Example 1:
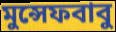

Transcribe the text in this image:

মুন্সেফবাবু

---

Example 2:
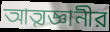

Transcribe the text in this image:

আত্মজ্ঞানীর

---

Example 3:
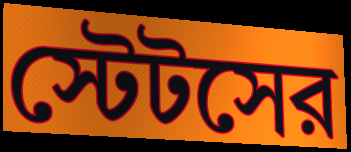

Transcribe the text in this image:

স্টেটসের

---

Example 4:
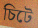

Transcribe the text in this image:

চিটে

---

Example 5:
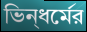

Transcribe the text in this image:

ভিন্‌ধর্মের